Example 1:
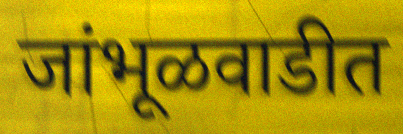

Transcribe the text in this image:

जांभूळवाडीत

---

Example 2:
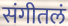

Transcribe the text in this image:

संगीतलं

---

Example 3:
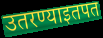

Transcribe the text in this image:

उतरण्याइतपत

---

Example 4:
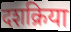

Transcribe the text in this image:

दशक्रिया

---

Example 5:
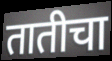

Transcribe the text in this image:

तातीचा